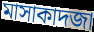
মাসাকাদজা